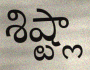
శిష్ట్లా